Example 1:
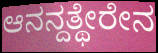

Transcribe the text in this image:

ಆನನ್ದತ್ಥೇರೇನ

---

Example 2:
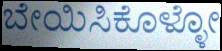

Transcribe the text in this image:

ಬೇಯಿಸಿಕೊಳ್ಳೋ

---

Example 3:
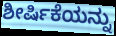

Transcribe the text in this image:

ಶೀರ್ಷಿಕೆಯನ್ನು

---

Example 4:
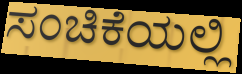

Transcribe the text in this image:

ಸಂಚಿಕೆಯಲ್ಲಿ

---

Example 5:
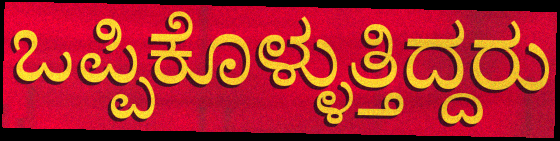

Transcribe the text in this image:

ಒಪ್ಪಿಕೊಳ್ಳುತ್ತಿದ್ದರು